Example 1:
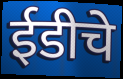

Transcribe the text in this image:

ईडीचे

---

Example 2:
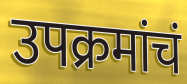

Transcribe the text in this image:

उपक्रमांचं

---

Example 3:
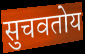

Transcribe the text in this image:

सुचवतोय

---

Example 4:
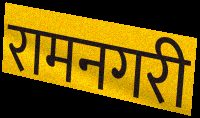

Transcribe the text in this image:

रामनगरी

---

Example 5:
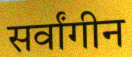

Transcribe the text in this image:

सर्वांगीन